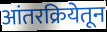
आंतरक्रियेतून